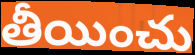
తీయించు